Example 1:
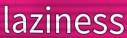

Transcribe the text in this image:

laziness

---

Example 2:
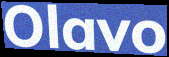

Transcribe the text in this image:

Olavo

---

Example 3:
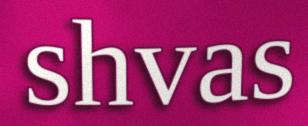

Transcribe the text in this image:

shvas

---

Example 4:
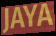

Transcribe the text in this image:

JAYA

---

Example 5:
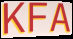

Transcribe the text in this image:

KFA